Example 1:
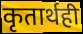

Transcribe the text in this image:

कृतार्थही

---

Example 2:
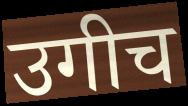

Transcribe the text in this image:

उगीच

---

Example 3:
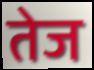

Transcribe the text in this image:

तेज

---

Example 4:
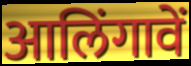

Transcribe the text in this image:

आलिंगावें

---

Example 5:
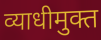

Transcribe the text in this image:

व्याधीमुक्त